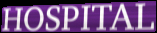
HOSPITAL